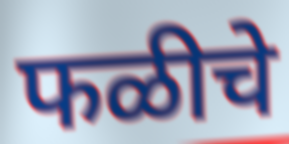
फळीचे